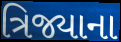
ત્રિજ્યાના